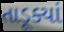
તાડૂક્યાં